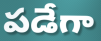
పడేగా